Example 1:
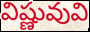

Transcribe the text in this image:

విష్ణువువి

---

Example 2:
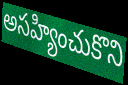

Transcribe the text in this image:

అసహ్యించుకొని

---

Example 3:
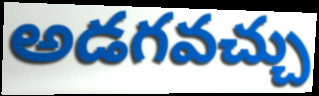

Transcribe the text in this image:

అడగవచ్చు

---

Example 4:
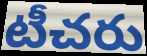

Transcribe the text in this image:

టీచరు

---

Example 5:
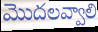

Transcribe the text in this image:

మొదలవ్వాలి